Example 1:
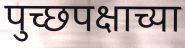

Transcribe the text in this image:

पुच्छपक्षाच्या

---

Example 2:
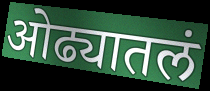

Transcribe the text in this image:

ओढ्यातलं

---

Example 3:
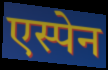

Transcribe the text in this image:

एस्पेन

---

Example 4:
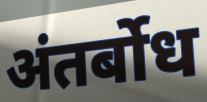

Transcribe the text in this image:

अंतर्बोध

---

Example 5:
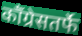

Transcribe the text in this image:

कॉँग्रेसतर्फे